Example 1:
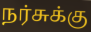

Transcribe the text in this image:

நர்சுக்கு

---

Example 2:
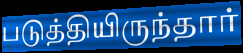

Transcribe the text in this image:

படுத்தியிருந்தார்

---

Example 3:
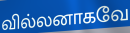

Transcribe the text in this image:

வில்லனாகவே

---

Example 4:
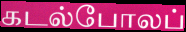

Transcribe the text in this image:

கடல்போலப்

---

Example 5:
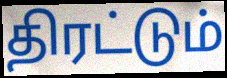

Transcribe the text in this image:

திரட்டும்